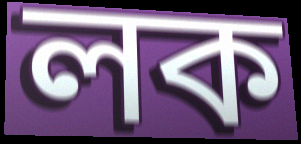
লক